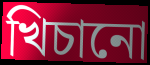
খিচানো